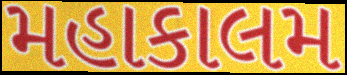
મહાકાલમ